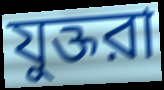
যুক্তরা